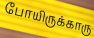
போயிருக்காரு